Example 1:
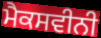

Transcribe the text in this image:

ਮੈਕਸਵੀਨੀ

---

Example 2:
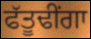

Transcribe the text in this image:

ਫੱਤੂਢੀਂਗਾ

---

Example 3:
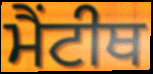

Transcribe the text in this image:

ਮੈਂਟੀਥ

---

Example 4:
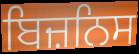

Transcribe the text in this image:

ਬਿਜ਼ਨਿਸ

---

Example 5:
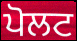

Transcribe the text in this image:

ਪੋਲਟ